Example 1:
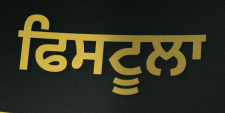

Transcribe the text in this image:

ਫਿਸਟੂਲਾ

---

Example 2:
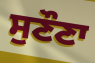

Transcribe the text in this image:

ਸੁਣੌਣਾ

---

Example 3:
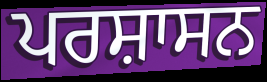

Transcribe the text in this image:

ਪਰਸ਼ਾਸਨ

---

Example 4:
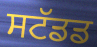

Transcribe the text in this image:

ਸਟੱਡਡ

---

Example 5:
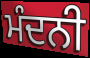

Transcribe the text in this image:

ਮੰਦਨੀ